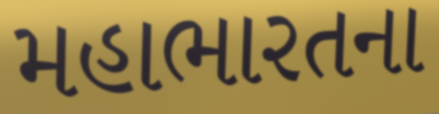
મહાભારતના